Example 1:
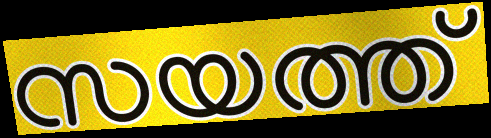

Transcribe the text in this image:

സയത്ത്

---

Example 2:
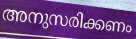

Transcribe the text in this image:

അനുസരിക്കണം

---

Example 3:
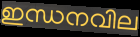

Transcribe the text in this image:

ഇന്ധനവില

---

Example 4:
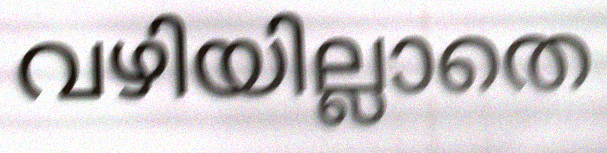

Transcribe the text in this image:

വഴിയില്ലാതെ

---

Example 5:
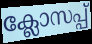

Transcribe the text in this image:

ക്ലോസപ്പ്